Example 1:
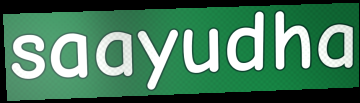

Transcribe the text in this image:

saayudha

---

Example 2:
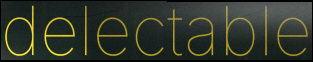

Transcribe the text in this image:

delectable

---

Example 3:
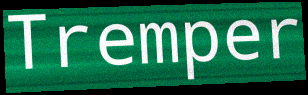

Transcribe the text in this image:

Tremper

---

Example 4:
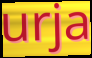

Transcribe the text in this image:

urja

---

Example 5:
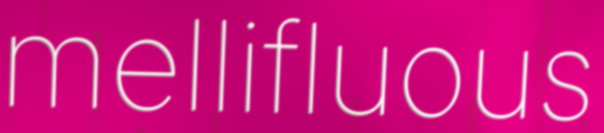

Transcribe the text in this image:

mellifluous